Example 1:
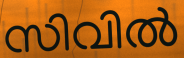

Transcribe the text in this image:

സിവിൽ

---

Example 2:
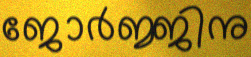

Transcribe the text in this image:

ജോർജ്ജിനു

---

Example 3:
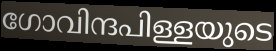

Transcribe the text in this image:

ഗോവിന്ദപിള്ളയുടെ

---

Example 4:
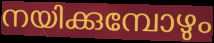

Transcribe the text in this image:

നയിക്കുമ്പോഴും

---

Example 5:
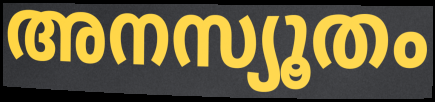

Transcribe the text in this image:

അനസ്യൂതം